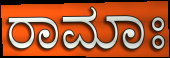
ರಾಮಾಃ